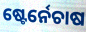
ଷ୍ଟେର୍ନେଚାଷ